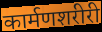
कार्मणशरीरी